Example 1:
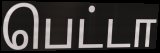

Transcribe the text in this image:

பெட்டா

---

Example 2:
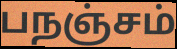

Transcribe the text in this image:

பநஞ்சம்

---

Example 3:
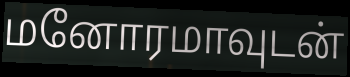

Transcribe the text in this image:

மனோரமாவுடன்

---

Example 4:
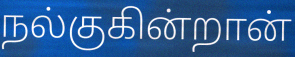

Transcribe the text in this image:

நல்குகின்றான்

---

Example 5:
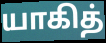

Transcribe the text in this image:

யாகித்